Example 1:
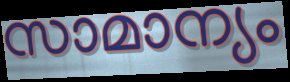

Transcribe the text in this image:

സാമാന്യം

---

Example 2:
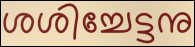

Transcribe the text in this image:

ശശിച്ചേട്ടനു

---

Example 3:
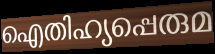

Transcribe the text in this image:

ഐതിഹ്യപ്പെരുമ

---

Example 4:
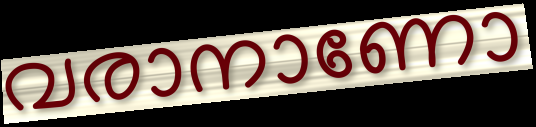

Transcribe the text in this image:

വരാനാണോ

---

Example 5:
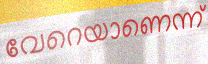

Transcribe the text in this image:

വേറെയാണെന്ന്